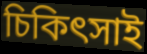
চিকিৎসাই